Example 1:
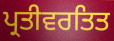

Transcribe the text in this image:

ਪ੍ਰਤੀਵਰਤਿਤ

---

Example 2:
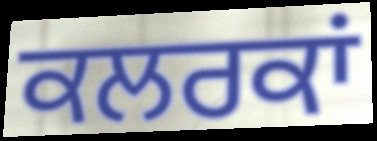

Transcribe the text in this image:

ਕਲਰਕਾਂ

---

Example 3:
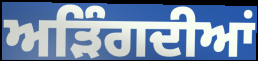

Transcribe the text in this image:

ਅੜਿੰਗਦੀਆਂ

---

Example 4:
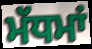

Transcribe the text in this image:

ਮੱਧਮਾਂ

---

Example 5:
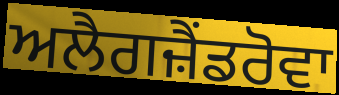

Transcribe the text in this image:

ਅਲੈਗਜ਼ੈਂਡਰੋਵਾ